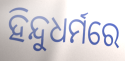
ହିନ୍ଦୁଧର୍ମରେ